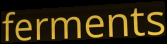
ferments